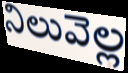
నిలువెల్ల